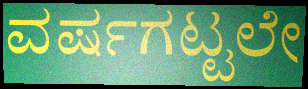
ವರ್ಷಗಟ್ಟಲೇ